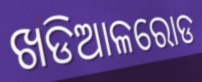
ଖଡିଆଳରୋଡ